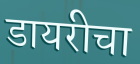
डायरीचा